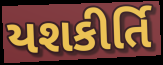
યશકીર્તિ